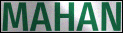
MAHAN